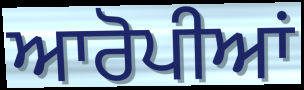
ਆਰੋਪੀਆਂ